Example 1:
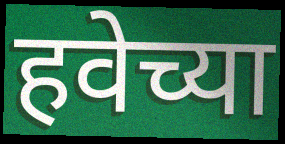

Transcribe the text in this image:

हवेच्या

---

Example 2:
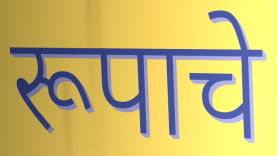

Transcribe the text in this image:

रूपाचे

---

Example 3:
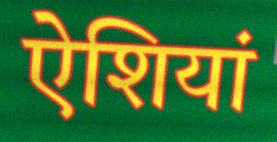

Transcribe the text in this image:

ऐशियां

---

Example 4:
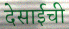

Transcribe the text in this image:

देसाईची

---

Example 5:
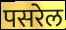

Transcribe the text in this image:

पसरेल